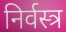
निर्वस्त्र